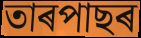
তাৰপাছৰ